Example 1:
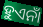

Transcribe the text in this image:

ହୁଏନାଁ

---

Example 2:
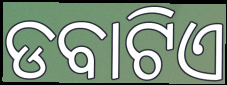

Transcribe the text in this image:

ଡବାଟିଏ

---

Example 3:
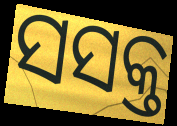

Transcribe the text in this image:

ସସକ୍ତ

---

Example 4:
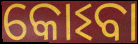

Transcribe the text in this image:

କୋଽବା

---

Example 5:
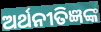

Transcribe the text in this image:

ଅର୍ଥନୀତିଜ୍ଞଙ୍କ